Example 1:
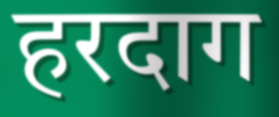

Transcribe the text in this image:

हरदाग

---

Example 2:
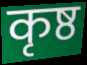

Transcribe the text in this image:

कृष्ठ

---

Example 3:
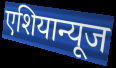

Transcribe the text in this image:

एशियान्यूज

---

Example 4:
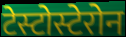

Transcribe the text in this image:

टेस्‍टोस्‍टेरोन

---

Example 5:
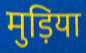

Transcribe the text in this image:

मुड़िया